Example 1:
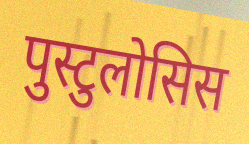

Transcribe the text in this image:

पुस्टुलोसिस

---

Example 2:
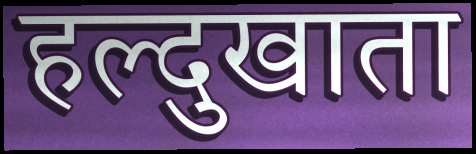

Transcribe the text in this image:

हल्दुखाता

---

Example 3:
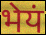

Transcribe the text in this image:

भेयं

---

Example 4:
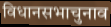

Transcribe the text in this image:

विधानसभाचुनाव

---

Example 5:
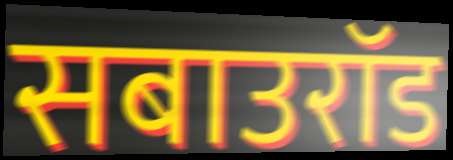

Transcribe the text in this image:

सबाउरॉड